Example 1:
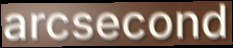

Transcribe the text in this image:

arcsecond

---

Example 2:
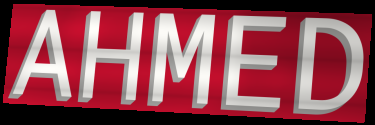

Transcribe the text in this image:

AHMED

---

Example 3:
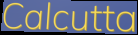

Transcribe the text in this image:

Calcutta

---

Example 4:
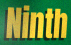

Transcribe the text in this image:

Ninth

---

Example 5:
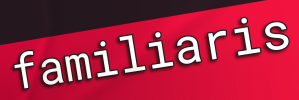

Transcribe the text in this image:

familiaris